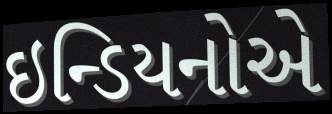
ઇન્ડિયનોએ